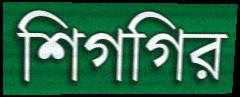
শিগগির